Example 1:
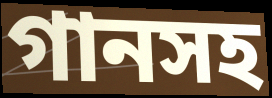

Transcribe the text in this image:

গানসহ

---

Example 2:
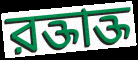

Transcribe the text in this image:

রক্তাক্ত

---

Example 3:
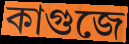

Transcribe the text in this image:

কাগুজে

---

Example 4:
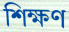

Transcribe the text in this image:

শিক্ষণ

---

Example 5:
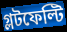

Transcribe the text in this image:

গ্লটফেল্টি